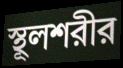
স্থূলশরীর